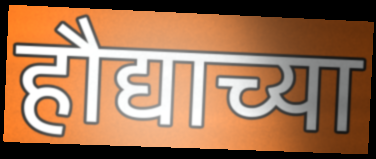
हौद्याच्या